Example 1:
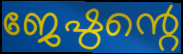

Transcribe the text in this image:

ജേഷ്ഠന്റെ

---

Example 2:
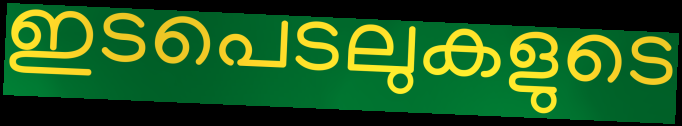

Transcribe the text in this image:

ഇടപെടലുകളുടെ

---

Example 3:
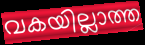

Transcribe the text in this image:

വകയില്ലാത്ത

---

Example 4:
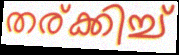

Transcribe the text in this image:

തര്ക്കിച്ച്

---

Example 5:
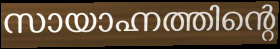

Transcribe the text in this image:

സായാഹ്നത്തിന്റെ